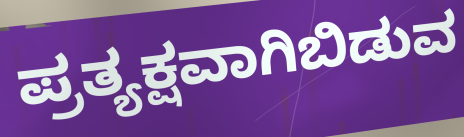
ಪ್ರತ್ಯಕ್ಷವಾಗಿಬಿಡುವ